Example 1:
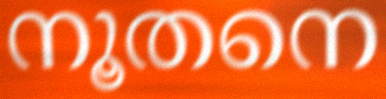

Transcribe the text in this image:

നൂതനെ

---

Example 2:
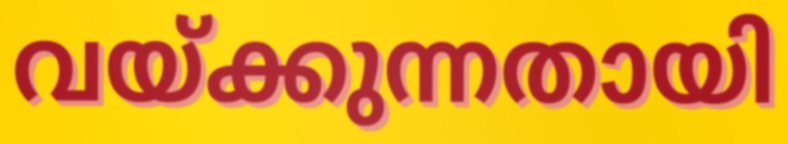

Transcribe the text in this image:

വയ്ക്കുന്നതായി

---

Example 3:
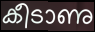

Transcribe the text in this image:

കീടാണു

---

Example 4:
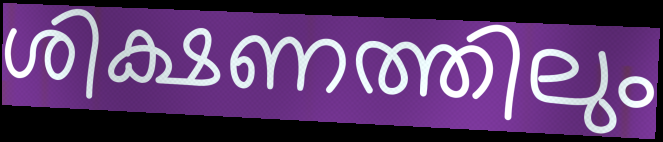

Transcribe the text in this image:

ശിക്ഷണത്തിലും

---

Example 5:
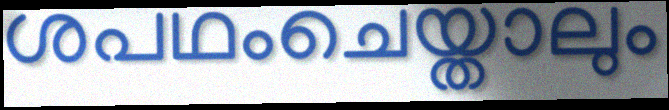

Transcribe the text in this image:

ശപഥംചെയ്താലും